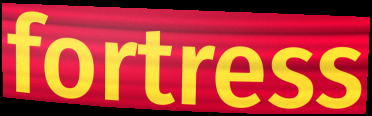
fortress